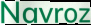
Navroz